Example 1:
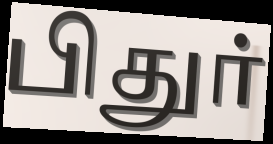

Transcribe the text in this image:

பிதுர்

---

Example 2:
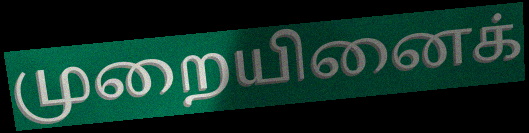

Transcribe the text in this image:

முறையினைக்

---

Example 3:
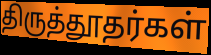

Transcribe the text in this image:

திருத்தூதர்கள்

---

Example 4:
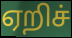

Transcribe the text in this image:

ஏறிச்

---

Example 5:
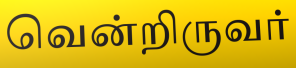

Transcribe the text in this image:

வென்றிருவர்